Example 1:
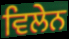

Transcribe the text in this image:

ਵਿਲੇਨ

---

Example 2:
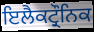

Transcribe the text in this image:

ਇਲੈਕਟ੍ਰੌਨਿਕ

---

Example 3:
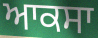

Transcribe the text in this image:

ਆਕਸਾ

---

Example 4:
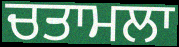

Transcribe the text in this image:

ਚਤਾਮਲਾ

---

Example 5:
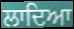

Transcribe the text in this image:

ਲਾਦਿਆ